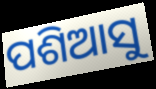
ପଶିଆସୁ